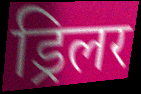
ड्रिलर